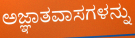
ಅಜ್ಞಾತವಾಸಗಳನ್ನು